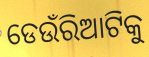
ଡେଉଁରିଆଟିକୁ